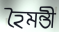
হৈমন্তী